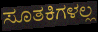
ಸೂತಕಿಗಳಲ್ಲ